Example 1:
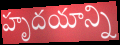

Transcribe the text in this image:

హృదయాన్ని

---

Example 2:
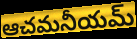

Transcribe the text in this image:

ఆచమనీయమ్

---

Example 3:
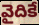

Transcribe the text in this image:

వైదికే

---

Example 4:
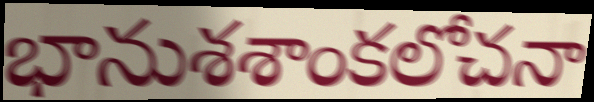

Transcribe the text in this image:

భానుశశాంకలోచనా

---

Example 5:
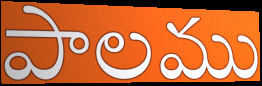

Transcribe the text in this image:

పాలము